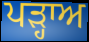
ਪੜ੍ਹਾਅ